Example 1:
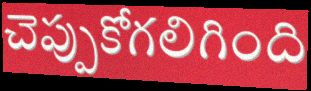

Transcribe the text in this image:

చెప్పుకోగలిగింది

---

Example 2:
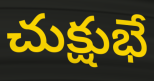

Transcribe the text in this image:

చుక్షుభే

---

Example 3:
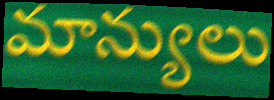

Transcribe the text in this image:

మాన్యులు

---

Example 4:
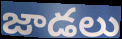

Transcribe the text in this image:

జాడలు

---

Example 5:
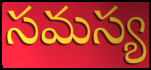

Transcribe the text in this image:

సమస్య